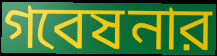
গবেষনার